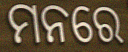
ମନରେ